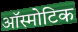
ऑस्मोटिक